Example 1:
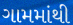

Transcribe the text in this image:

ગામમાંથી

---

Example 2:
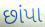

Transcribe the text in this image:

છાંપા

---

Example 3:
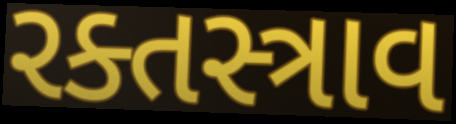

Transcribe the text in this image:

રક્તસ્ત્રાવ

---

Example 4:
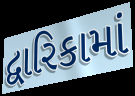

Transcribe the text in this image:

દ્વારિકામાં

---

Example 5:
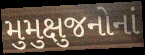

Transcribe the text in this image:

મુમુક્ષુજનોનાં